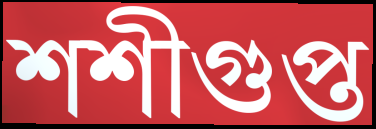
শশীগুপ্ত